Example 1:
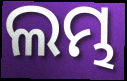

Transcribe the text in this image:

ଲମ୍ଭ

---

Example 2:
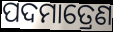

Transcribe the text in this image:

ପଦମାତ୍ରେଣ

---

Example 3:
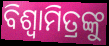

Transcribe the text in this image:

ବିଶ୍ଵାମିତ୍ରଙ୍କୁ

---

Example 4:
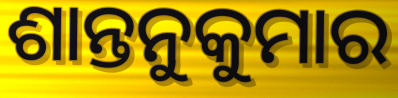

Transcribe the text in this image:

ଶାନ୍ତନୁକୁମାର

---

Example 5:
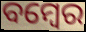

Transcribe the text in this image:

ବମ୍ବେର